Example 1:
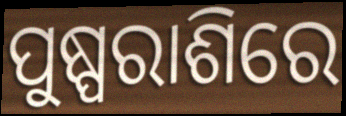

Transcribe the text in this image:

ପୁଷ୍ପରାଶିରେ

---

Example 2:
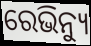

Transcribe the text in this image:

ରେଭିନ୍ୟୁ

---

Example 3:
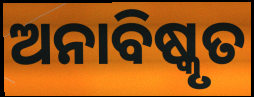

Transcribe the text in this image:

ଅନାବିଷ୍କୃତ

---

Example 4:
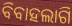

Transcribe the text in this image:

ବିବାହଲାଗି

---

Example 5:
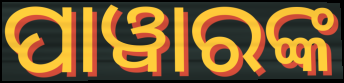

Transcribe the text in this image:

ପାୱାରଙ୍କ